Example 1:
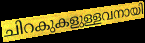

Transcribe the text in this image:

ചിറകുകളുള്ളവനായി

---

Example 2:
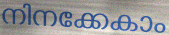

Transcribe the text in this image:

നിനക്കേകാം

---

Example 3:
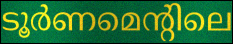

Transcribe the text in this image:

ടൂർണമെന്റിലെ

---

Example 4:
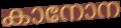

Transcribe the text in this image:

കാനോന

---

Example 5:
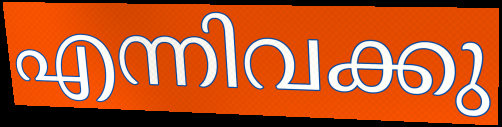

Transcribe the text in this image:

എന്നിവക്കു